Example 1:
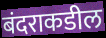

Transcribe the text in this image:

बंदराकडील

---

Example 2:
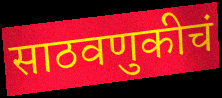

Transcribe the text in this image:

साठवणुकीचं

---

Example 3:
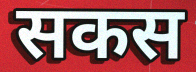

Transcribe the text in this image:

सकस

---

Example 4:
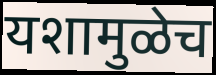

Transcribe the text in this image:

यशामुळेच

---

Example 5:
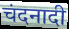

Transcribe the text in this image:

चंदनादी